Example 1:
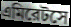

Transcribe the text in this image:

এমিরেটসে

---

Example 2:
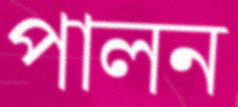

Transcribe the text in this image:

পালন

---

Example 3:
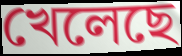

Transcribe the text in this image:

খেলেছে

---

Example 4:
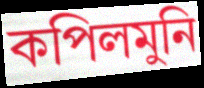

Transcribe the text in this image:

কপিলমুনি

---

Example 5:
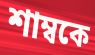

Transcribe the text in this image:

শাম্বকে